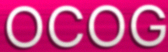
OCOG